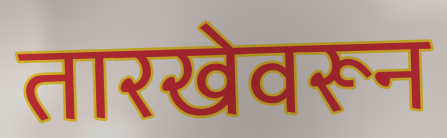
तारखेवरून